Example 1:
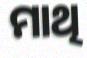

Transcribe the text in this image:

ମାଥି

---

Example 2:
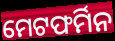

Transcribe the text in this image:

ମେଟଫର୍ମିନ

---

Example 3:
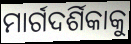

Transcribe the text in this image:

ମାର୍ଗଦର୍ଶିକାକୁ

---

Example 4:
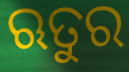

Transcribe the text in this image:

ଋତୁର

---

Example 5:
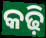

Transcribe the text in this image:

କଢ଼ି